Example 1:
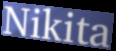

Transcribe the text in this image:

Nikita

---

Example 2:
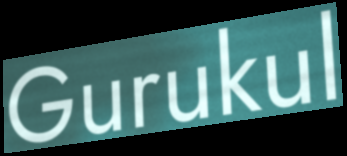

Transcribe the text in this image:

Gurukul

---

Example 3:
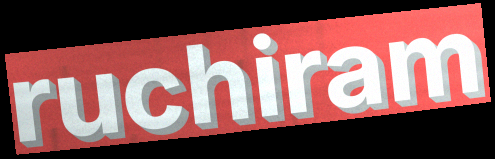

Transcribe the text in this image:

ruchiram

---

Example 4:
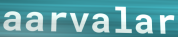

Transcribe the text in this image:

aarvalar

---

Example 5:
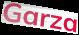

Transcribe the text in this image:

Garza